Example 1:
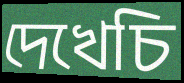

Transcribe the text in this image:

দেখেচি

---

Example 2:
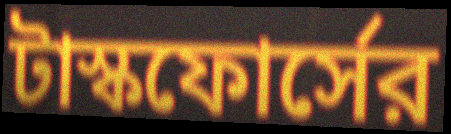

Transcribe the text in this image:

টাস্কফোর্সের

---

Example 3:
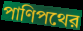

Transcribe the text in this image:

পাণিপথের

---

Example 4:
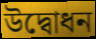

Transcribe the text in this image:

উদ্বোধন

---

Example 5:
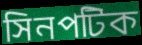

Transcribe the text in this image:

সিনপটিক